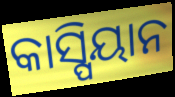
କାସ୍ପିୟାନ